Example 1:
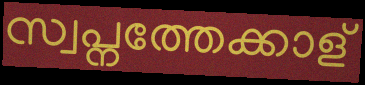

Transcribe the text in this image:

സ്വപ്നത്തേക്കാള്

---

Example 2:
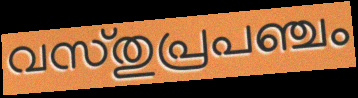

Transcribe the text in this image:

വസ്തുപ്രപഞ്ചം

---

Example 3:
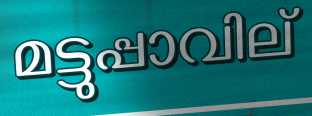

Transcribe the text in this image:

മട്ടുപ്പാവില്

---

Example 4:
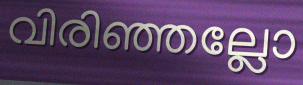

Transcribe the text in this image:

വിരിഞ്ഞല്ലോ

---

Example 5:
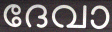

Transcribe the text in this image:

ദേവാ